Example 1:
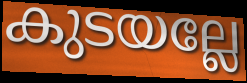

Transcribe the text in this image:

കുടയല്ലേ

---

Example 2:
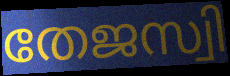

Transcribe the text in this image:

തേജസ്വി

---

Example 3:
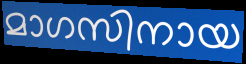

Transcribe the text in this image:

മാഗസിനായ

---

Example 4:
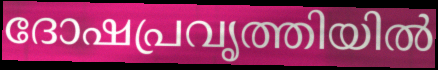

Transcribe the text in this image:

ദോഷപ്രവൃത്തിയിൽ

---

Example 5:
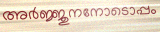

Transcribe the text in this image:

അർജ്ജുനനോടൊപ്പം